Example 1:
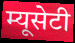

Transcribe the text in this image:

म्यूसेटी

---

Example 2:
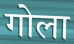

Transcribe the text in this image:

गोला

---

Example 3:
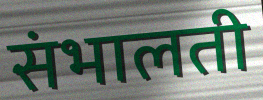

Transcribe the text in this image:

संभालती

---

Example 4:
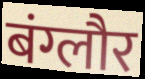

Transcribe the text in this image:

बंग्लौर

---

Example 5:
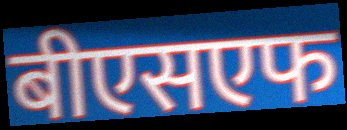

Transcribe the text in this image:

बीएसएफ